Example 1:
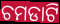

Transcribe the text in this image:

ଚମଡାଟି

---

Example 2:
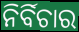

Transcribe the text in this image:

ନିର୍ବିଚାର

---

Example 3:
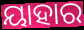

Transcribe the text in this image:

ୟାହାର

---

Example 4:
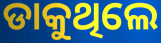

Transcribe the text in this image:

ଡାକୁଥିଲେ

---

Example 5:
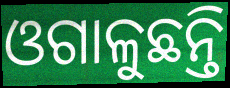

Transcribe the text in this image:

ଓଗାଳୁଛନ୍ତି